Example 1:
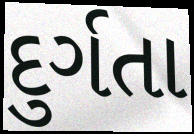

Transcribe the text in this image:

દુર્ગતા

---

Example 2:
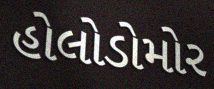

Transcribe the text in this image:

હોલોડોમોર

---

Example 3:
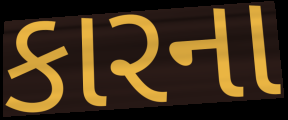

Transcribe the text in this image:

કારના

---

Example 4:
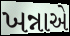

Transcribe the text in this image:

ખન્નાએ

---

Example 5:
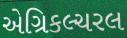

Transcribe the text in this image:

એગ્રિકલ્ચરલ